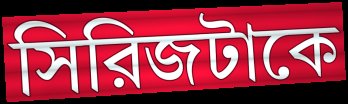
সিরিজটাকে